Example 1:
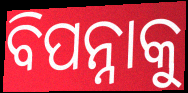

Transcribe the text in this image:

ବିପନ୍ନାକୁ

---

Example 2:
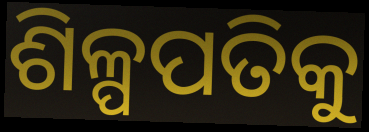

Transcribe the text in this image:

ଶିଳ୍ପପତିକୁ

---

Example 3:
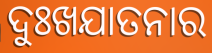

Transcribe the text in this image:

ଦୁଃଖଯାତନାର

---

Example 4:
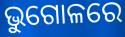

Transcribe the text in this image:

ଭୁଗୋଳରେ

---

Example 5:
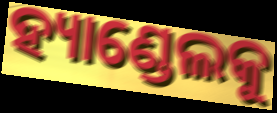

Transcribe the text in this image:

ହ୍ୟାଣ୍ଡେଲକୁ